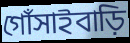
গোঁসাইবাড়ি